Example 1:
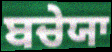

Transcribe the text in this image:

ਬਚੇਯਾ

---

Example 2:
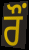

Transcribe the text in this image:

ਰੌਂ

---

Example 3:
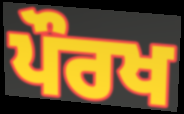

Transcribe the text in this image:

ਪੌਰਖ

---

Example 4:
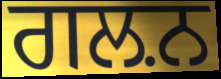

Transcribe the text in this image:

ਗਲ਼ਨ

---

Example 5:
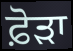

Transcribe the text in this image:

ਫ਼ੋੜਾ